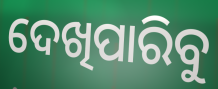
ଦେଖିପାରିବୁ